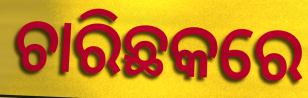
ଚାରିଛକରେ